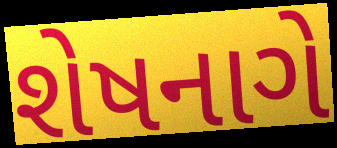
શેષનાગે